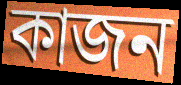
কাজন